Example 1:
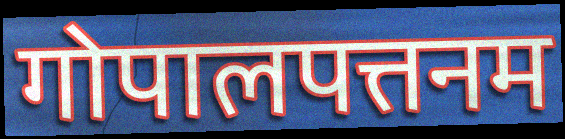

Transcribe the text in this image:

गोपालपत्तनम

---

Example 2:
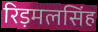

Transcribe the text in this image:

रिड़मलसिंह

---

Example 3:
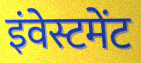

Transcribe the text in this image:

इंवेस्टमेंट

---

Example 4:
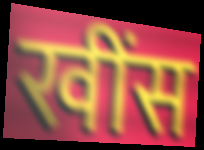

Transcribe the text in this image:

खींस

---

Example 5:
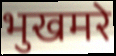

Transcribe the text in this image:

भुखमरे